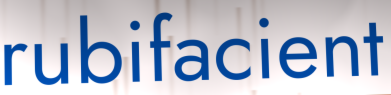
rubifacient